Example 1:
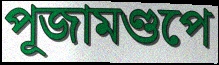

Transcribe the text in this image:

পূজামণ্ডপে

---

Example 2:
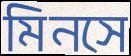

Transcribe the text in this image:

মিনসে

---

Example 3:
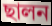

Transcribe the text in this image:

ছালন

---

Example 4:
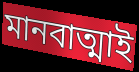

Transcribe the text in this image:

মানবাত্মাই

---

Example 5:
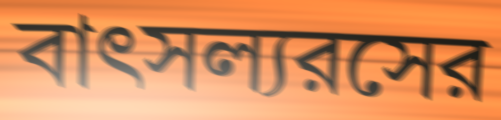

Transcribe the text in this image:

বাৎসল্যরসের